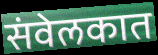
संवेलकात